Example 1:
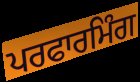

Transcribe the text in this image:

ਪਰਫਾਰਮਿੰਗ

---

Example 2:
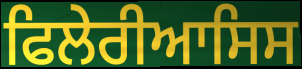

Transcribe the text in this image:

ਫਿਲੇਰੀਆਸਿਸ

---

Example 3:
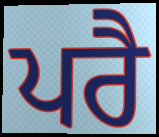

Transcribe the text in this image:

ਪਰੈ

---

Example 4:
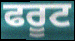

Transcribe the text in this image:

ਫਰੂਟ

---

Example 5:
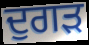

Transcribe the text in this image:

ਦੁਗੜ